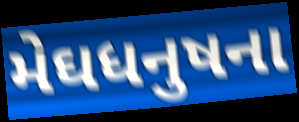
મેઘધનુષના